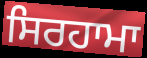
ਸਿਰਹਾਮਾ